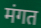
मंगत